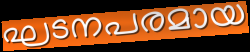
ഘടനപരമായ